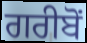
ਗਰੀਬੋਂ